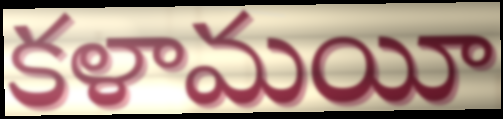
కళామయీ